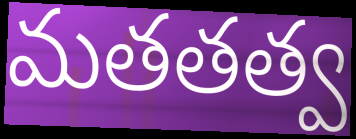
మతతత్వ